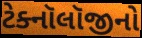
ટેક્નૉલૉજીનો